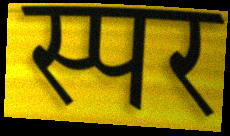
स्पर